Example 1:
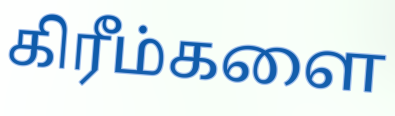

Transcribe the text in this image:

கிரீம்களை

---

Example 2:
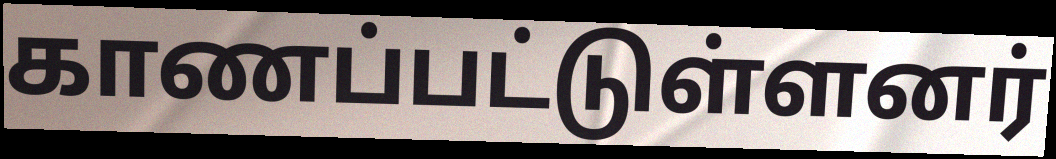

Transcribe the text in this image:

காணப்பட்டுள்ளனர்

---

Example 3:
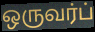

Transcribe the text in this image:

ஒருவர்ப்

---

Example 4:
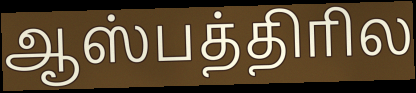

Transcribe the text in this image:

ஆஸ்பத்திரில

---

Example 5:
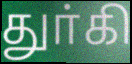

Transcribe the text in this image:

துர்கி